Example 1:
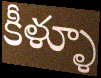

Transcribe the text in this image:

కీళ్ళూ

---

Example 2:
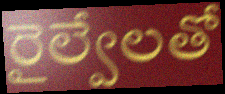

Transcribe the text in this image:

రైల్వేలతో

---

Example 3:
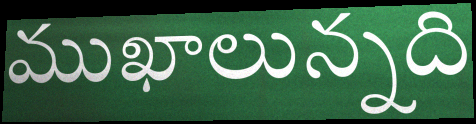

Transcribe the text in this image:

ముఖాలున్నది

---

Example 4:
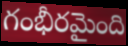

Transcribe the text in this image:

గంభీరమైంది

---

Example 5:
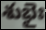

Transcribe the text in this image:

శుభైః